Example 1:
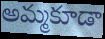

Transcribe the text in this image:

అమ్మకూడా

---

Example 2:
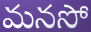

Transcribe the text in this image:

మనసో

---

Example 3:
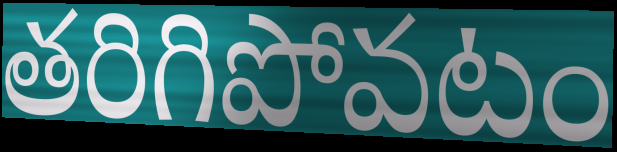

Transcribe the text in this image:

తరిగిపోవటం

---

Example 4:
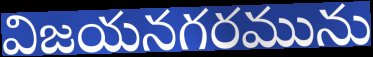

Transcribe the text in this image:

విజయనగరమును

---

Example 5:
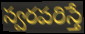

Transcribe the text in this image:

స్వరపరిస్తే